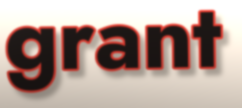
grant